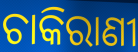
ଚାକିରାଣୀ